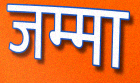
जम्मा